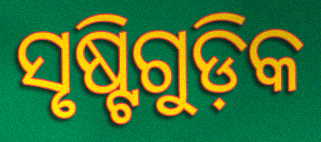
ସୃଷ୍ଟିଗୁଡ଼ିକ